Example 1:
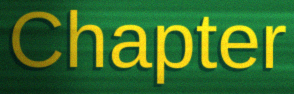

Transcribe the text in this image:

Chapter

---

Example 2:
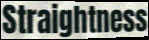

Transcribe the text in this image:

Straightness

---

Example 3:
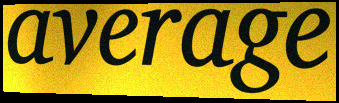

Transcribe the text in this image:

average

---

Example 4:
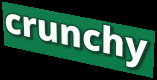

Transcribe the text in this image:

crunchy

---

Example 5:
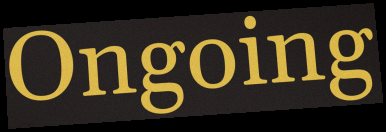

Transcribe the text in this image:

Ongoing